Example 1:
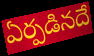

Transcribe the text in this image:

ఏర్పడినదే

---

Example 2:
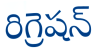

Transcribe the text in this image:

రిగ్రెషన్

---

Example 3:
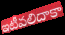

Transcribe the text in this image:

ఇటీవలిదాకా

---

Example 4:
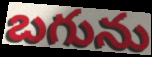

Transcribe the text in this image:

బగును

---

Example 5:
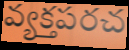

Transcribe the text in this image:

వ్యక్తపరచ